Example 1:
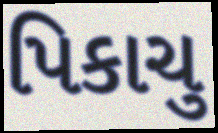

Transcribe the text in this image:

પિકાચુ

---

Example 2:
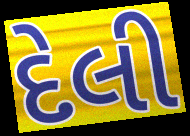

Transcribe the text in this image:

દેલી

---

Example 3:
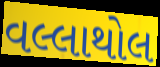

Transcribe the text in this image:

વલ્લાથોલ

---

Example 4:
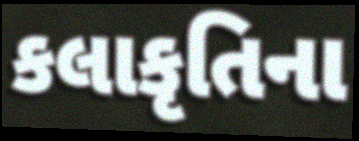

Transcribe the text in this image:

કલાકૃતિના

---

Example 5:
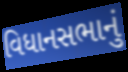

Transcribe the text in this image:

વિધાનસભાનું